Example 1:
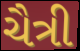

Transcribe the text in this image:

ચૈત્રી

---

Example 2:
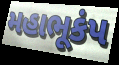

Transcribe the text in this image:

મહાભૂકંપ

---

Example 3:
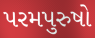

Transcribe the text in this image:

પરમપુરુષો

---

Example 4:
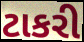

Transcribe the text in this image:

ટાકરી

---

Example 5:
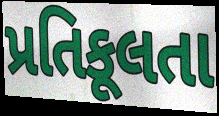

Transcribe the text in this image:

પ્રતિકૂલતા